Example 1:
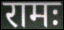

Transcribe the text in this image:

रामः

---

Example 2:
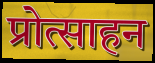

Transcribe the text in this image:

प्रोत्साहन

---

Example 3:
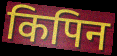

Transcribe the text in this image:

किपिन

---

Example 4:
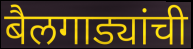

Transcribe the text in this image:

बैलगाड्यांची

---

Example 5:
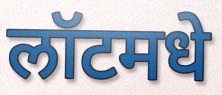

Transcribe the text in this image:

लॉटमधे